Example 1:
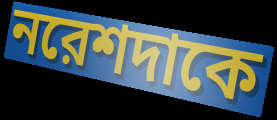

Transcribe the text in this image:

নরেশদাকে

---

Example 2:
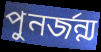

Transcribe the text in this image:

পুনর্জন্ম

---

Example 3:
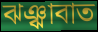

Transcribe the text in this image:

ঝঞ্ঝাবাত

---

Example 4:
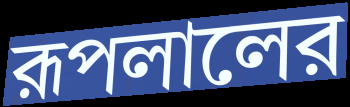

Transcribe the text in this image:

রূপলালের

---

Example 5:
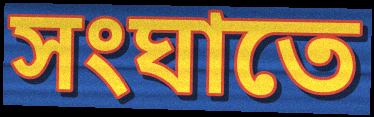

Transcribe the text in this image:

সংঘাতে